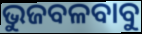
ଭୁଜବଳବାବୁ